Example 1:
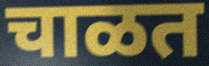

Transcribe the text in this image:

चाळत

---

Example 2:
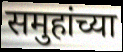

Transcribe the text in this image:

समुहांच्या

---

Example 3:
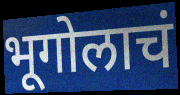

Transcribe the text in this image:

भूगोलाचं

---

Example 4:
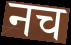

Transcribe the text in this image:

नच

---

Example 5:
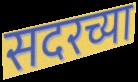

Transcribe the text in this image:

सदरच्या